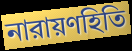
নারায়ণহিতি